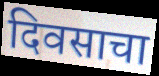
दिवसाचा